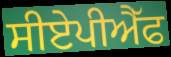
ਸੀਏਪੀਐੱਫ